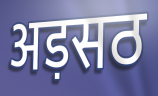
अड़सठ